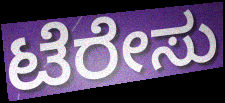
ಟೆರೇಸು